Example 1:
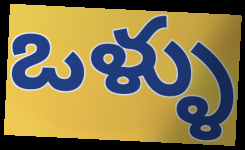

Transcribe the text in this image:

ఒళ్ళు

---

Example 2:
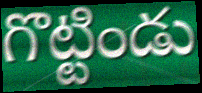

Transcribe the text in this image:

గొట్టిండు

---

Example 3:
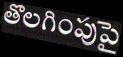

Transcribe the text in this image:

తొలగింపుపై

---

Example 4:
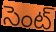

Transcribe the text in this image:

సెంట్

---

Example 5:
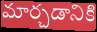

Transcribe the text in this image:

మార్చడానికి